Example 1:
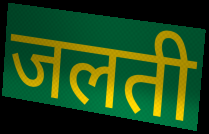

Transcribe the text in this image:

जलती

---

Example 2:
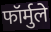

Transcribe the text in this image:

फॉर्मुले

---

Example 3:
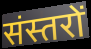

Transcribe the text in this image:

संस्तरों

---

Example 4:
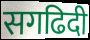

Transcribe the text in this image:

सगढिदी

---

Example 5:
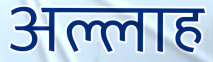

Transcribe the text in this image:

अल्लाह